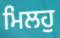
ਮਿਲਹੁ